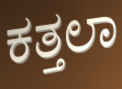
ಕತ್ತಲಾ